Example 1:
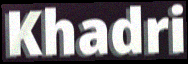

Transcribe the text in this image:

Khadri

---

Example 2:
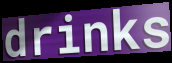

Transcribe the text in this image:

drinks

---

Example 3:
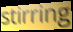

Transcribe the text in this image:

stirring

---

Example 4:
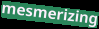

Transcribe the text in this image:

mesmerizing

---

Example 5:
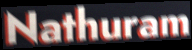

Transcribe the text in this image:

Nathuram